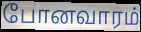
போனவாரம்